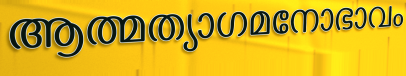
ആത്മത്യാഗമനോഭാവം